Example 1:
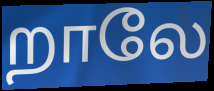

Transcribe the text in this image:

றாலே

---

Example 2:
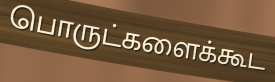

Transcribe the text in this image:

பொருட்களைக்கூட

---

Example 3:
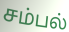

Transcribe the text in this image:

சம்பல்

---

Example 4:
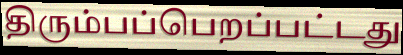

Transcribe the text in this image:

திரும்பப்பெறப்பட்டது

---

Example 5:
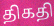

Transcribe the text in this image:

திகதி